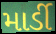
માર્ડી